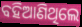
ବହିଆଣିଥିଲେ